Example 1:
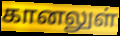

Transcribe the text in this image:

கானலுள்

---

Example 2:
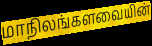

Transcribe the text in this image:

மாநிலங்களவையின்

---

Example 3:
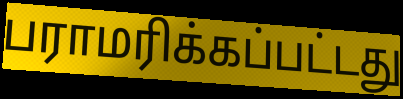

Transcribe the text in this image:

பராமரிக்கப்பட்டது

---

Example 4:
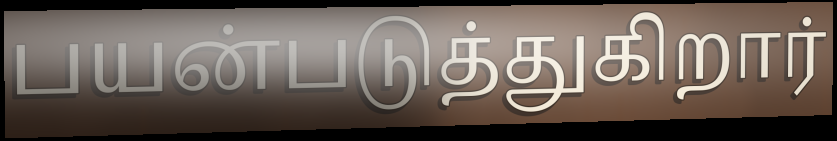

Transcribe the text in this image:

பயன்படுத்துகிறார்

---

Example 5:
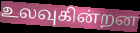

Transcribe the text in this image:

உலவுகின்றன